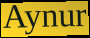
Aynur